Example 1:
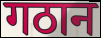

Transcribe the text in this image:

गठान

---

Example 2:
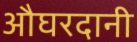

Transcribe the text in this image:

औघरदानी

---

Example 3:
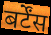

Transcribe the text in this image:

बर्टेंस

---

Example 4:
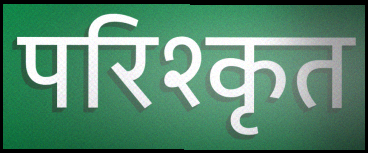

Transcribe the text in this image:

परिश्कृत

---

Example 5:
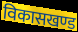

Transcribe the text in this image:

विकासखण्‍ड